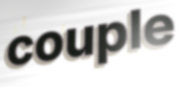
couple